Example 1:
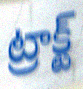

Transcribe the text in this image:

ట్రాక్ట్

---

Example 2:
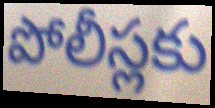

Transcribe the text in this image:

పోలీస్లకు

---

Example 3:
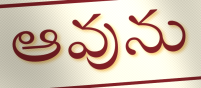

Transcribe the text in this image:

ఆవును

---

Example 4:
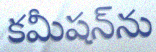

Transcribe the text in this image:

కమీషన్‌ను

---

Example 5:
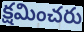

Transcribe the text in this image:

క్షమించరు